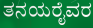
ತನಯರೈವರ